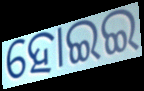
ହୋଇଇ